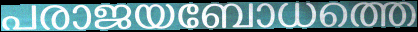
പരാജയബോധത്തെ